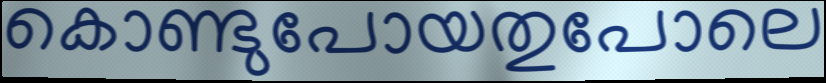
കൊണ്ടുപോയതുപോലെ